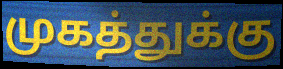
முகத்துக்கு